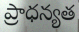
ప్రాధన్యత